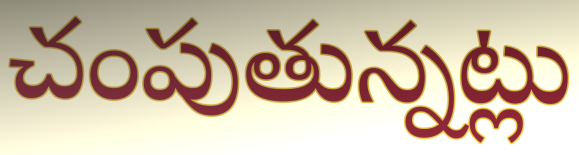
చంపుతున్నట్లు